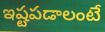
ఇష్టపడాలంటే